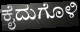
ಕೈದುಗೊಳಿ